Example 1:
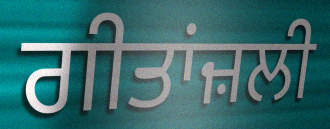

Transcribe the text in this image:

ਗੀਤਾਂਜ਼ਲੀ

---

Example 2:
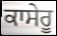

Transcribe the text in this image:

ਕਾਸੇਰੂ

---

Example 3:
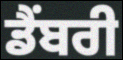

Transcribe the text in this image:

ਡੈਂਬਰੀ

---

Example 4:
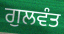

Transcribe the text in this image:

ਗੁਲਵੰਤ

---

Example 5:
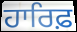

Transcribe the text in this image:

ਹਾਰਿਫ਼